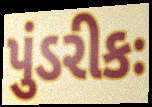
પુંડરીકઃ